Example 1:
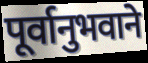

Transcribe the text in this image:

पूर्वानुभवाने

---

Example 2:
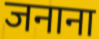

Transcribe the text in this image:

जनाना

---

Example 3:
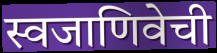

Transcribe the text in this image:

स्वजाणिवेची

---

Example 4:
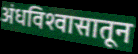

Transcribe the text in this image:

अंधविश्वासातून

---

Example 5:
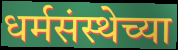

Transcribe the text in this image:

धर्मसंस्थेच्या